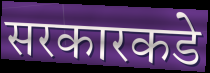
सरकारकडे